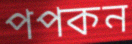
পপকন